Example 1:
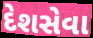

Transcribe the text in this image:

દેશસેવા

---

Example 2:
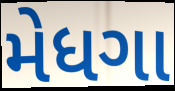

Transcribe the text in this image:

મેધગા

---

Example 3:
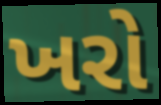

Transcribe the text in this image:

ખરો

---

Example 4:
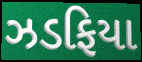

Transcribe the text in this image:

ઝડફિયા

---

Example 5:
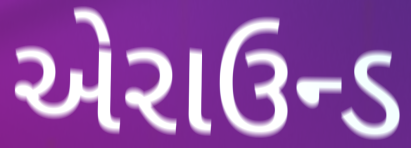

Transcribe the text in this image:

એરાઉન્ડ